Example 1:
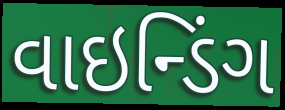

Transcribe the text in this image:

વાઇન્ડિંગ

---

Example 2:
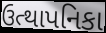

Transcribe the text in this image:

ઉત્થાપનિકા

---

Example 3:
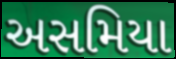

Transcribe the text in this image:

અસમિયા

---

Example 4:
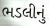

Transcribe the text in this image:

ભડલીનું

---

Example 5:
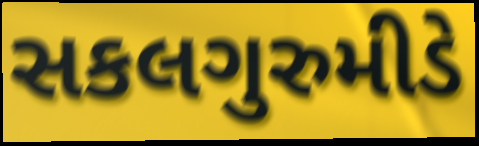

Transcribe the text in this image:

સકલગુરુમીડે